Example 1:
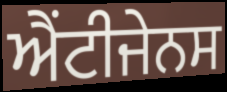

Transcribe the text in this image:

ਐਂਟੀਜੇਨਸ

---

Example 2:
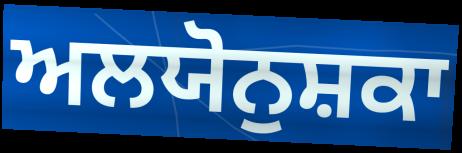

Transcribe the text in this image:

ਅਲਯੋਨੁਸ਼ਕਾ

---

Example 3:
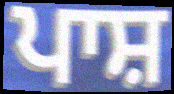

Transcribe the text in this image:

ਪਾਸ਼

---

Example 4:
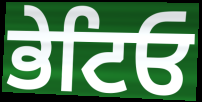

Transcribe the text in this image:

ਭੇਟਿਓ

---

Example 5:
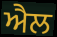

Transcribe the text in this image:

ਐਲ